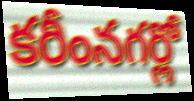
కరీంనగర్లో